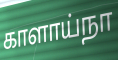
காளாய்நா